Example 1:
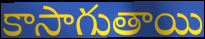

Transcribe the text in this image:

కాసాగుతాయి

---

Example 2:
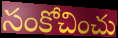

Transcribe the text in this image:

సంకోచించు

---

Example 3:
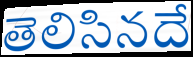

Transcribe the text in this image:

తెలిసినదే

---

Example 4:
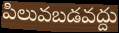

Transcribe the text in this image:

పిలువబడవద్దు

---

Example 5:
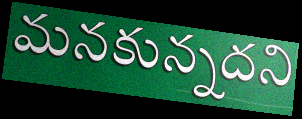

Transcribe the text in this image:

మనకున్నదని